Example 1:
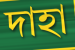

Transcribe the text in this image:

দাহা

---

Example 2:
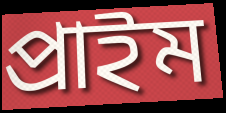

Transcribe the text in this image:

প্ৰাইম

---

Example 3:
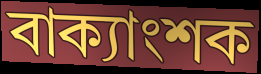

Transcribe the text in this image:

বাক্যাংশক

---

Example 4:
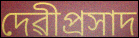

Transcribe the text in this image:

দেৱীপ্ৰসাদ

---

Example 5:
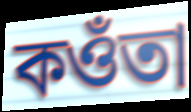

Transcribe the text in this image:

কওঁতা